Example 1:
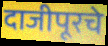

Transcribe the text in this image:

दाजीपूरचे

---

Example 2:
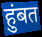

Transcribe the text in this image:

हुंबत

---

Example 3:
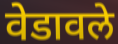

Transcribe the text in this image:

वेडावले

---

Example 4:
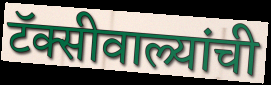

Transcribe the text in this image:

टॅक्सीवाल्यांची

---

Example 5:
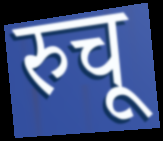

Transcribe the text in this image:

रुचू